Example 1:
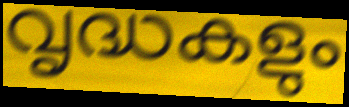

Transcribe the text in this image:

വൃദ്ധകളും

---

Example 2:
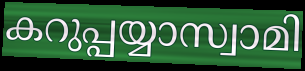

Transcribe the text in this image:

കറുപ്പയ്യാസ്വാമി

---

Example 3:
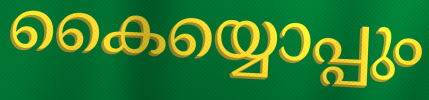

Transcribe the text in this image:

കൈയ്യൊപ്പും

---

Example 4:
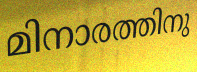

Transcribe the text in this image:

മിനാരത്തിനു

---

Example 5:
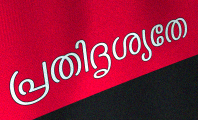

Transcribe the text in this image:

പ്രതിദൃശ്യതേ